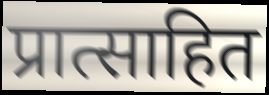
प्रात्साहित